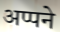
अप्पने